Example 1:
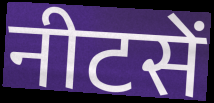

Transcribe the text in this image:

नीटसें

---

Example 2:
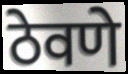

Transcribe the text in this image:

ठेवणे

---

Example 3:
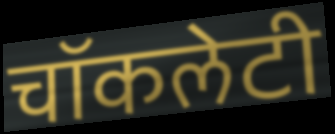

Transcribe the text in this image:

चॉकलेटी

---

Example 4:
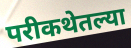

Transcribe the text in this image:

परीकथेतल्या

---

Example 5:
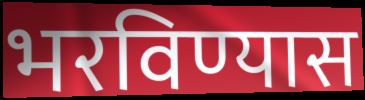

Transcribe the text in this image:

भरविण्यास